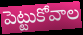
పెట్టుకోవాల